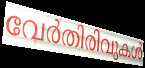
വേർതിരിവുകൾ